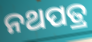
ନଥପତ୍ର